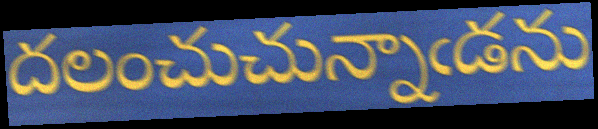
దలంచుచున్నాఁడను